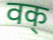
वक्